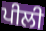
ਪੀਲੀ